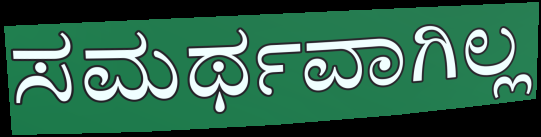
ಸಮರ್ಥವಾಗಿಲ್ಲ